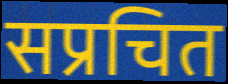
सप्रचित